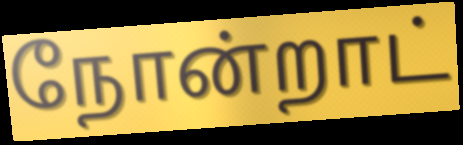
நோன்றாட்